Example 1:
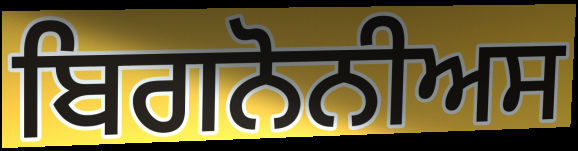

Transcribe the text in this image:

ਬਿਗਨੋਨੀਅਸ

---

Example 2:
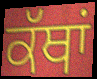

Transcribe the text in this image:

ਕੱਥਾਂ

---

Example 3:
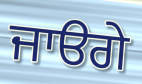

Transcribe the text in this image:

ਜਾੳਗੇ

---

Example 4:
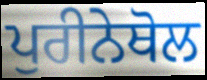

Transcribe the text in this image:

ਪੁਰੀਨੇਥੋਲ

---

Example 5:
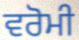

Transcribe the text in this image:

ਵਰੋਮੀ